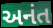
અનંત